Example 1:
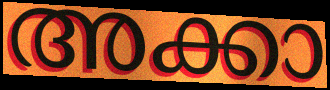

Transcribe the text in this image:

അക്കാ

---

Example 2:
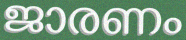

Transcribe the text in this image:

ജാരണം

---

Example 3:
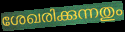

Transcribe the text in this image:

ശേഖരിക്കുന്നതും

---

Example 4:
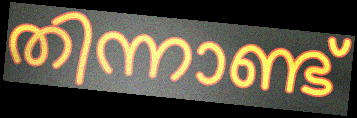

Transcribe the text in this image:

തിന്നാണ്ട്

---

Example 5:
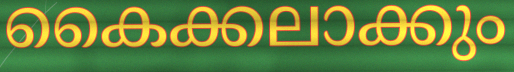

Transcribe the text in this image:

കൈക്കലാക്കും